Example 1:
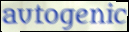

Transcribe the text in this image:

autogenic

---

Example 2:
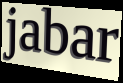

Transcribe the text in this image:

jabar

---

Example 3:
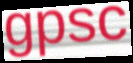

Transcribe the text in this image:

gpsc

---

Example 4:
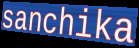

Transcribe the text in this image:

sanchika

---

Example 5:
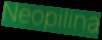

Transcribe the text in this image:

Neopilina